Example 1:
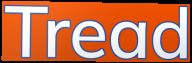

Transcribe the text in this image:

Tread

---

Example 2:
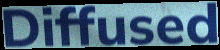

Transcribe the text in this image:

Diffused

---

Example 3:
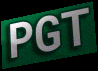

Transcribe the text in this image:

PGT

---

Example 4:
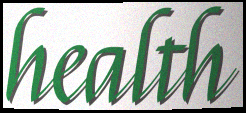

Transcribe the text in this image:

health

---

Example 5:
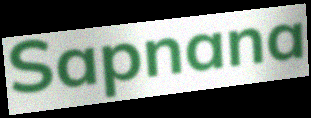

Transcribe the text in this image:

Sapnana